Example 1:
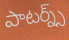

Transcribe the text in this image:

పాటర్న్స్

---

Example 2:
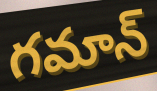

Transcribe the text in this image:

గమాన్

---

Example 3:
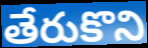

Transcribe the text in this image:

తేరుకొని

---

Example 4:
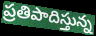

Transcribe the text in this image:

ప్రతిపాదిస్తున్న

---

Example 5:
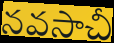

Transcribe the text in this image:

నవసాచీ